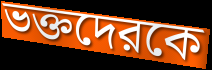
ভক্তদেরকে